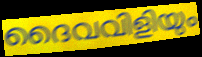
ദൈവവിളിയും